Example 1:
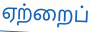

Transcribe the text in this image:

ஏற்றைப்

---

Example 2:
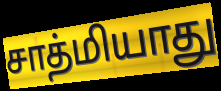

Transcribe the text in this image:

சாத்மியாது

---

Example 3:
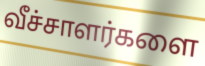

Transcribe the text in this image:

வீச்சாளர்களை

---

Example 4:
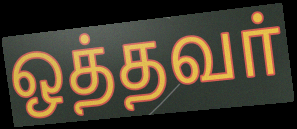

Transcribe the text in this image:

ஒத்தவர்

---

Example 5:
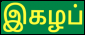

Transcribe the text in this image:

இகழப்